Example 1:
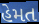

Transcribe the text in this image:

હેમત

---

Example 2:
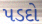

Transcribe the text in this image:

પડદો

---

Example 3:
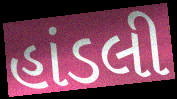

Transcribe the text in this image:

હાંડલી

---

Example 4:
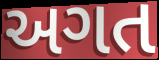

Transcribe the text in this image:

અગત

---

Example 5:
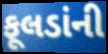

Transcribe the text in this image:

ફૂલડાંની